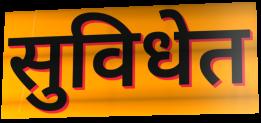
सुविधेत